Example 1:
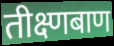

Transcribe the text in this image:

तीक्ष्णबाण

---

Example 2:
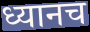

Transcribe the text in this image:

ध्यानच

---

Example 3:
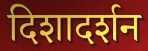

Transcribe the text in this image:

दिशादर्शन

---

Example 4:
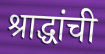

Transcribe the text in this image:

श्राद्धांची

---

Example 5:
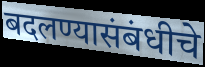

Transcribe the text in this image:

बदलण्यासंबंधीचे